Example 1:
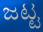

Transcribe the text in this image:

ಜಟ್ಟ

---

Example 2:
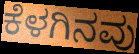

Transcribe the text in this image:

ಕೆಳಗಿನವು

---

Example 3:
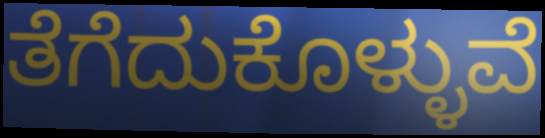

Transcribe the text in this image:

ತೆಗೆದುಕೊಳ್ಳುವೆ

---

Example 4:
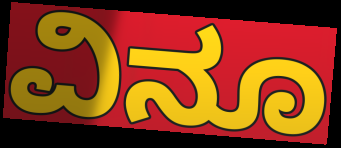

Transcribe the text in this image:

ವಿನೂ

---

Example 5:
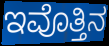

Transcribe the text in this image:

ಇವೊತ್ತಿನ